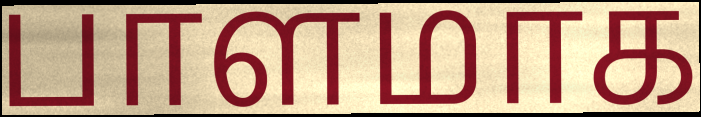
பாளமாக